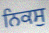
ਨਿਕਸੁ